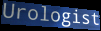
Urologist